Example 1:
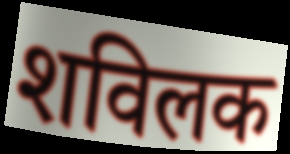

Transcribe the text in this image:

शविलक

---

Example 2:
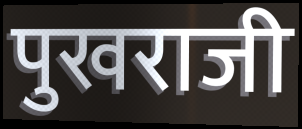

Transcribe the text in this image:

पुखराजी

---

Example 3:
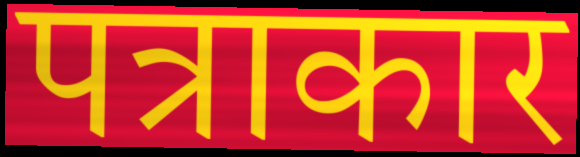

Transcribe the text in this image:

पत्राकार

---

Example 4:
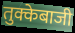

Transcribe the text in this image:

तुक्केबाजी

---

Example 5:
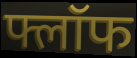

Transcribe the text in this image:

फ्लॉफ